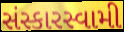
સંસ્કારસ્વામી